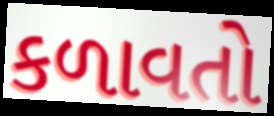
કળાવતો